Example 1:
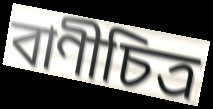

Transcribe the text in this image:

বাণীচিত্র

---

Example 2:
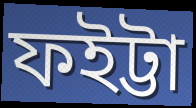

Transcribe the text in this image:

ফইট্টা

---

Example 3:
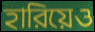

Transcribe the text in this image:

হারিয়েও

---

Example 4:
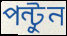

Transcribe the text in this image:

পন্টুন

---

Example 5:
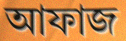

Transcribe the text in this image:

আফাজ